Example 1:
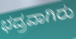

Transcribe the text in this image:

ಭದ್ರವಾಗಿರು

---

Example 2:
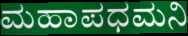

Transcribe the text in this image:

ಮಹಾಪಧಮನಿ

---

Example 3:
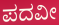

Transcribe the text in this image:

ಪದವೀ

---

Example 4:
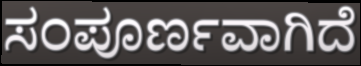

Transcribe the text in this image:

ಸಂಪೂರ್ಣವಾಗಿದೆ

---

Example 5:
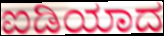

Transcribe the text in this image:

ಐಡಿಯಾದ